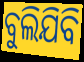
ବୁଲିଯିବି